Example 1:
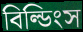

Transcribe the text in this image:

বিল্ডিংস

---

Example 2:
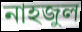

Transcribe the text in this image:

নাহজুল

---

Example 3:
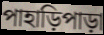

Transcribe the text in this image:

পাহাড়িপাড়া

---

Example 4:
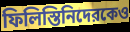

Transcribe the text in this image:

ফিলিস্তিনিদেরকেও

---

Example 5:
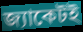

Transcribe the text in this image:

জ্যাকেটই